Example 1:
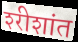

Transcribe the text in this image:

श्रीशांत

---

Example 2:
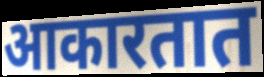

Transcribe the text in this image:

आकारतात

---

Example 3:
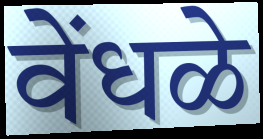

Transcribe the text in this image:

वेंधळे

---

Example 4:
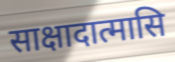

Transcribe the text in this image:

साक्षादात्मासि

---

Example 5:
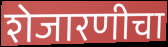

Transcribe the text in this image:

शेजारणीचा